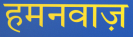
हमनवाज़